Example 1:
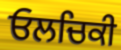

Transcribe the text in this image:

ਓਲਚਿਕੀ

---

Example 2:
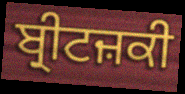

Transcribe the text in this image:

ਬ੍ਰੀਟਜ਼ਕੀ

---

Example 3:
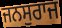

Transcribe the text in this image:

ਜਨਸੁਰਾਜ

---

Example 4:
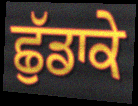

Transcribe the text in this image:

ਛੁੱਡਾਕੇ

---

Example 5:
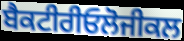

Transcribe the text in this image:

ਬੈਕਟੀਰੀਓਲੋਜੀਕਲ